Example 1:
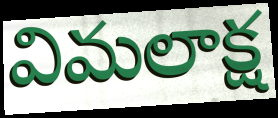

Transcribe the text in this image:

విమలాక్ష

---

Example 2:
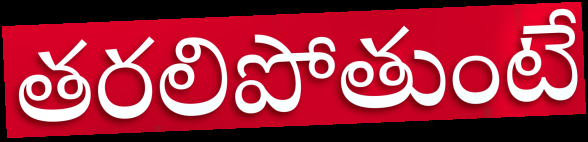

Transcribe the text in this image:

తరలిపోతుంటే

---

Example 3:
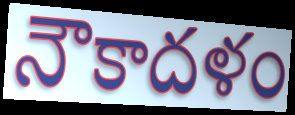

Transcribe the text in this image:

నౌకాదళం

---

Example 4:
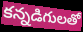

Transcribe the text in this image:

కన్నడిగులతో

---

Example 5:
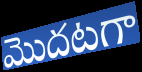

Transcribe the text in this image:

మొదటగా